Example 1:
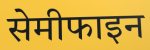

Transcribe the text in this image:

सेमीफाइन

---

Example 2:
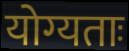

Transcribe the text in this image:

योग्यताः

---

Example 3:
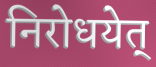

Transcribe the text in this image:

निरोधयेत्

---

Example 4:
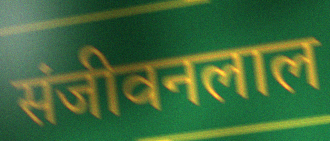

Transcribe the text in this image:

संजीवनलाल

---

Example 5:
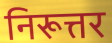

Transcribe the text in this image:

निरूत्तर